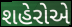
શહેરોએ